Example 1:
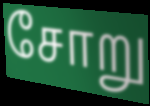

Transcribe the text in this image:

சோறு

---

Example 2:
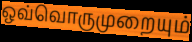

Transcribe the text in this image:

ஒவ்வொருமுறையும்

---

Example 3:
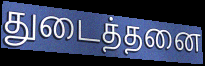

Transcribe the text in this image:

துடைத்தனை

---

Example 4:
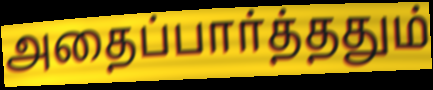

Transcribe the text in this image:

அதைப்பார்த்ததும்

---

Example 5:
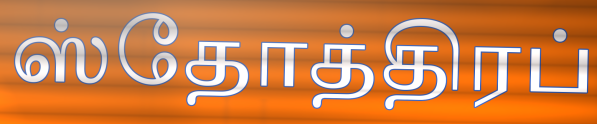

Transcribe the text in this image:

ஸ்தோத்திரப்